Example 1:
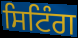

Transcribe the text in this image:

ਸਿਟਿੰਗ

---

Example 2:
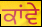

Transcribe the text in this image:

ਕਾਂਵੇ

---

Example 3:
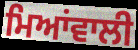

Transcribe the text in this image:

ਮਿਆਂਵਾਲੀ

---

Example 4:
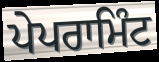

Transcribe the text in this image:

ਪੇਪਰਾਮਿੰਟ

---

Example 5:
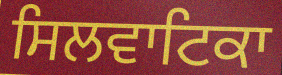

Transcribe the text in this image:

ਸਿਲਵਾਟਿਕਾ